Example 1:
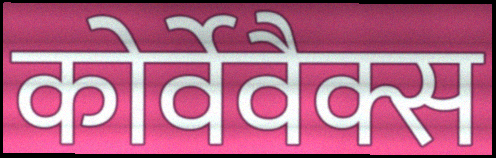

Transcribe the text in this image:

कोर्वेवैक्स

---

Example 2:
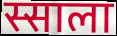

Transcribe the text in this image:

स्साला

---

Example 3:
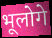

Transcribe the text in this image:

भूलोगे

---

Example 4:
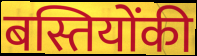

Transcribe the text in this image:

बस्तियोंकी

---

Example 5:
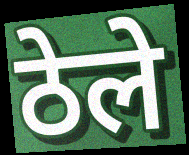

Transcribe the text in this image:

ठेले